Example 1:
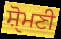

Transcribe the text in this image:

ਸ਼ੑੋਮਣੀ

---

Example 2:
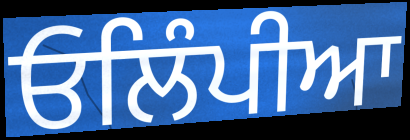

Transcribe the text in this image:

ਓਲਿੰਪੀਆ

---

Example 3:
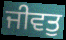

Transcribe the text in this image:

ਜੀਵਤੁ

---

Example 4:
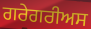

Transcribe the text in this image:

ਗਰੇਗਰੀਅਸ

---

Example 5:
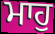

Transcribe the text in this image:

ਮਾਹੁ